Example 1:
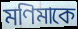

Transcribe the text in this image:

মণিমাকে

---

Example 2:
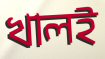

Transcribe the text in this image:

খালই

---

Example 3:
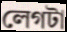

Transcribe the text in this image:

লেগটা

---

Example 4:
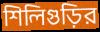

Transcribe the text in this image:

শিলিগুড়ির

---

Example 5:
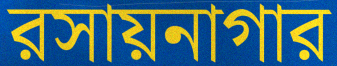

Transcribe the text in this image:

রসায়নাগার